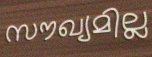
സൗഖ്യമില്ല